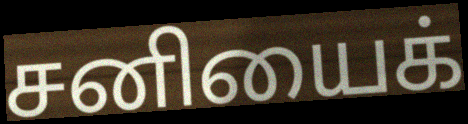
சனியைக்